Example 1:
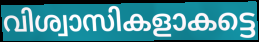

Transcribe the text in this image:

വിശ്വാസികളാകട്ടെ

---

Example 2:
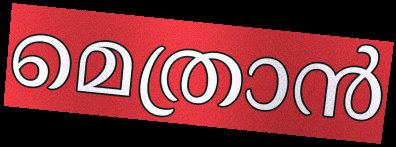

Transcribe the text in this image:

മെത്രാൻ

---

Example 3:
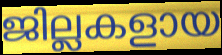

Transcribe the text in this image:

ജില്ലകളായ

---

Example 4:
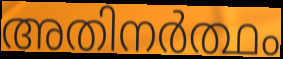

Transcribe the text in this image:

അതിനർത്ഥം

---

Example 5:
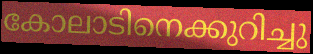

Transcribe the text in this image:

കോലാടിനെക്കുറിച്ചു